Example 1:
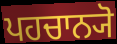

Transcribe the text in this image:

ਪਹਚਾਨ੍ਯੋ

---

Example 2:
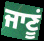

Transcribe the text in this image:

ਜਾਣੂਂ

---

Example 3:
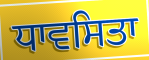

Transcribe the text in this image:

ਧਾਵਸਿਤਾ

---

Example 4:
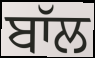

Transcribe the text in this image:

ਬਾੱਲ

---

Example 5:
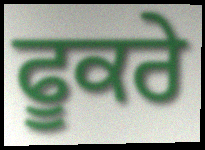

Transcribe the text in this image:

ਫੂਕਰੇ